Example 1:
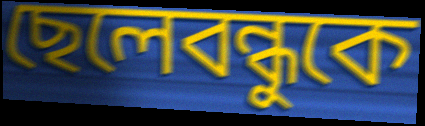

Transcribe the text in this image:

ছেলেবন্ধুকে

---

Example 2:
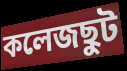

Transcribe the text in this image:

কলেজছুট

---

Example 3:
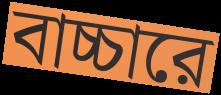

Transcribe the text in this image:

বাচ্চারে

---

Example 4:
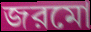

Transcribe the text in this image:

জরমো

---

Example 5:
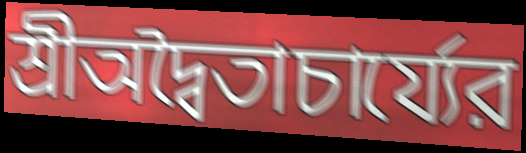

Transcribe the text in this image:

শ্রীঅদ্বৈতাচার্য্যের